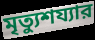
মৃত্যুশয্যার